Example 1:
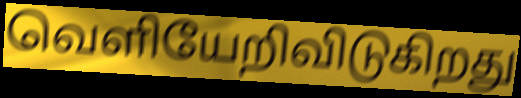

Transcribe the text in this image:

வெளியேறிவிடுகிறது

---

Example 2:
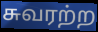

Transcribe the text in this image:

சுவரற்ற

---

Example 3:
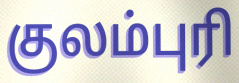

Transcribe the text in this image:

குலம்புரி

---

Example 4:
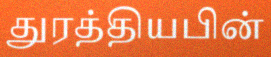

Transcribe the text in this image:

துரத்தியபின்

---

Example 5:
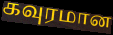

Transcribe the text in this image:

கவுரமான